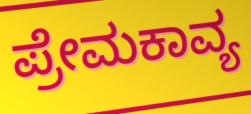
ಪ್ರೇಮಕಾವ್ಯ